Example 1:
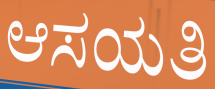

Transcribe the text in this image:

ಆಸಯತಿ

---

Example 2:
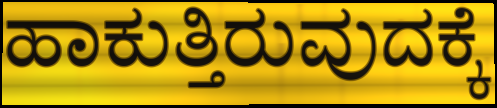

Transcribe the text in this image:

ಹಾಕುತ್ತಿರುವುದಕ್ಕೆ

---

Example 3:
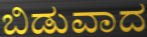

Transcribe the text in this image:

ಬಿಡುವಾದ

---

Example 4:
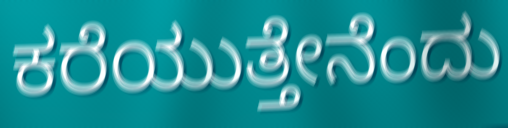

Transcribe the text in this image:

ಕರೆಯುತ್ತೇನೆಂದು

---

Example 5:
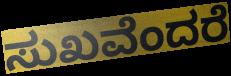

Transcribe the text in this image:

ಸುಖವೆಂದರೆ